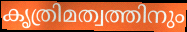
കൃത്രിമത്വത്തിനും